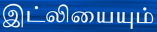
இட்லியையும்